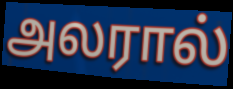
அலரால்